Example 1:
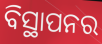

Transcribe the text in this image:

ବିସ୍ଥାପନର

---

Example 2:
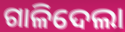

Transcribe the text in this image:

ଗାଳିଦେଲା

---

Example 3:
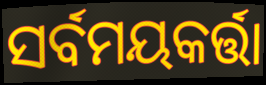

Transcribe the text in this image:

ସର୍ବମୟକର୍ତ୍ତା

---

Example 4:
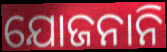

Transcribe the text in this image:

ଯୋଜନାନି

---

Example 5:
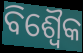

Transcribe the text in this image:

ବିଶ୍ୱୈକ